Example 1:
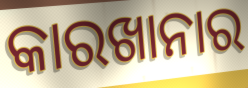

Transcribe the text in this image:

କାରଖାନାର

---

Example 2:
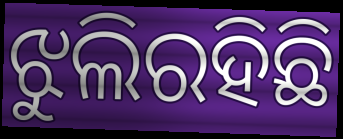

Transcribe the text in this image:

ଝୁଲିରହିଛି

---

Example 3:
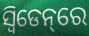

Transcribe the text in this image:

ସ୍ୱିଡେନ୍‌ରେ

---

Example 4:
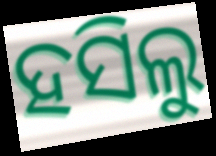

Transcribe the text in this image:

ହସିଲୁ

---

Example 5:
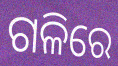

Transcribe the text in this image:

ଗଳିରେ